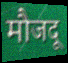
मौजदू